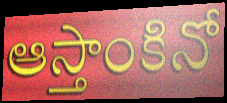
ఆస్తాంకినో